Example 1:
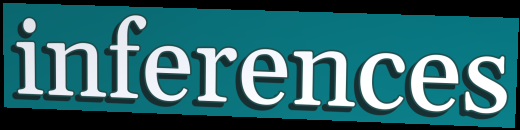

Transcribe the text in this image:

inferences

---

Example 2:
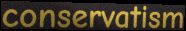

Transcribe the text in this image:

conservatism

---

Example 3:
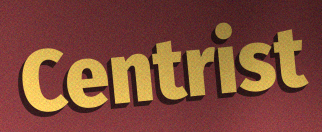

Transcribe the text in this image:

Centrist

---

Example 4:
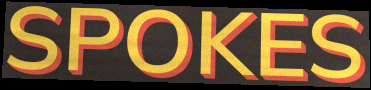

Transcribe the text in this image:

SPOKES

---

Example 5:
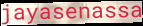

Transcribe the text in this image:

jayasenassa